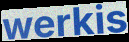
werkis